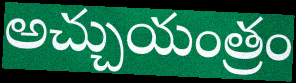
అచ్చుయంత్రం